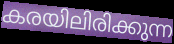
കരയിലിരിക്കുന്ന